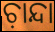
ଚ଼ାନ୍ଦା